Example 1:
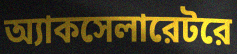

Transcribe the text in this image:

অ্যাকসেলারেটরে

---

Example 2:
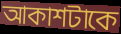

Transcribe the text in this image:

আকাশটাকে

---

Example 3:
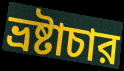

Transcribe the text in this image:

ভ্রষ্টাচার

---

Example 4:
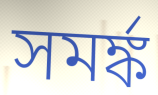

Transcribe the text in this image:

সমর্ঙ্ক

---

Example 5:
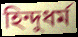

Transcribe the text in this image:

হিন্দুধর্ম